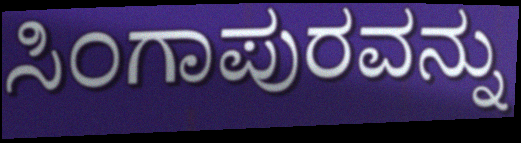
ಸಿಂಗಾಪುರವನ್ನು